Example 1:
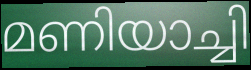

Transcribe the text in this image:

മണിയാച്ചി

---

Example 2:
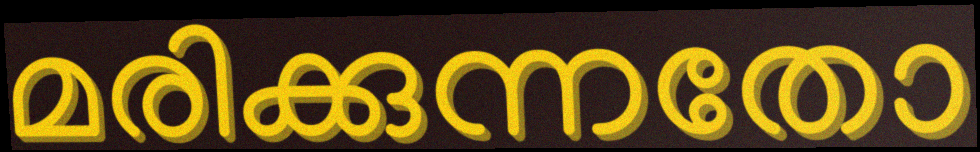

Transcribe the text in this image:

മരിക്കുന്നതോ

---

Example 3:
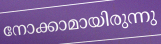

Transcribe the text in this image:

നോക്കാമായിരുന്നു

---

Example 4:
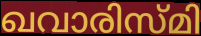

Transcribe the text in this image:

ഖവാരിസ്മി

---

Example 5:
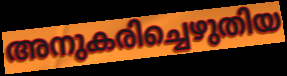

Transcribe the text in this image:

അനുകരിച്ചെഴുതിയ